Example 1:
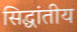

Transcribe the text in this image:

सिद्धांतीय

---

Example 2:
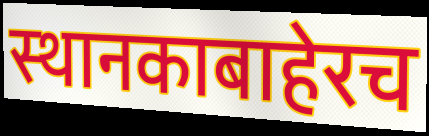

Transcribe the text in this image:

स्थानकाबाहेरच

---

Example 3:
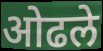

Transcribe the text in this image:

ओढले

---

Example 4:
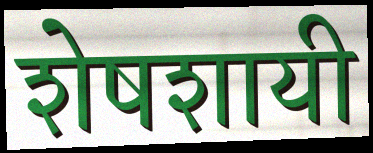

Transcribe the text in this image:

शेषशायी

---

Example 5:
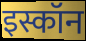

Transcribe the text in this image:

इस्कॉन